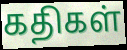
கதிகள்